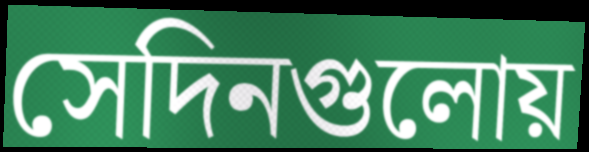
সেদিনগুলোয়